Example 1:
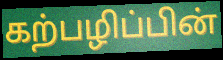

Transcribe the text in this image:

கற்பழிப்பின்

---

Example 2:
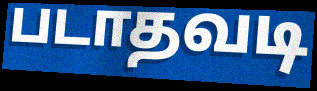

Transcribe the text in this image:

படாதவடி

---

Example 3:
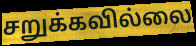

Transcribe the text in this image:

சறுக்கவில்லை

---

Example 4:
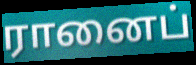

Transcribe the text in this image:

ரானைப்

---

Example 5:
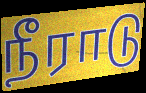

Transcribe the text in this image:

நீராடு